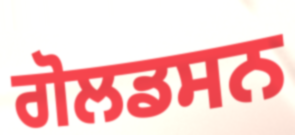
ਗੋਲਡਸਨ